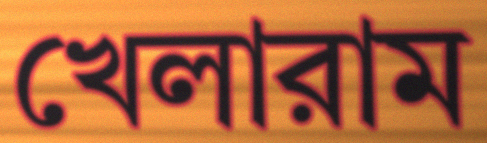
খেলারাম